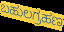
ಬಹುಲಗ್ರಹಣ